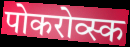
पोकरोव्स्क